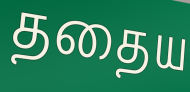
ததைய